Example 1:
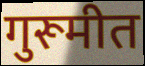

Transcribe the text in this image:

गुरूमीत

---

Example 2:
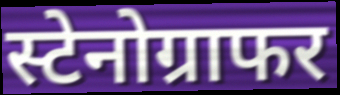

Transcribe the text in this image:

स्टेनोग्राफर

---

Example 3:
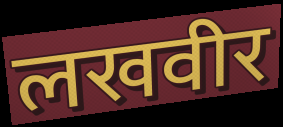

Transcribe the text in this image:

लखवीर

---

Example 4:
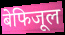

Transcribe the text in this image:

बेफिजूल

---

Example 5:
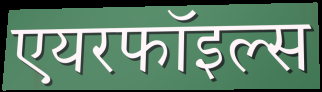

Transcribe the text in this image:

एयरफॉइल्स